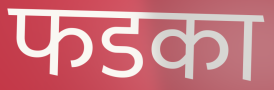
फडका